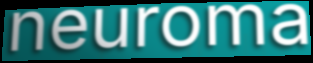
neuroma